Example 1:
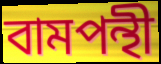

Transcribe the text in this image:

বামপন্থী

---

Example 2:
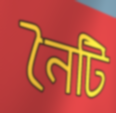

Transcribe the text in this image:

নৈটি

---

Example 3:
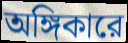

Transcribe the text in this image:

অঙ্গিকারে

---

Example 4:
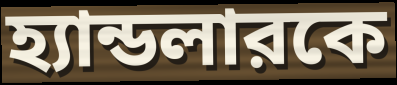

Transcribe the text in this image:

হ্যান্ডলারকে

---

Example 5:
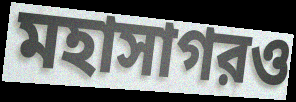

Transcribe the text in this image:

মহাসাগরও